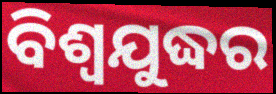
ବିଶ୍ବଯୁଦ୍ଧର